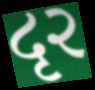
દૃર